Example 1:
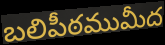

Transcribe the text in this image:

బలిపీఠముమీద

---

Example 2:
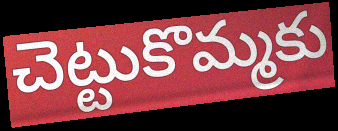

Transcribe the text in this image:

చెట్టుకొమ్మకు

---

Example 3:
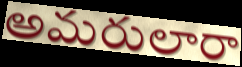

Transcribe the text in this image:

అమరులారా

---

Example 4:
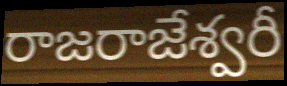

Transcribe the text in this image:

రాజరాజేశ్వరీ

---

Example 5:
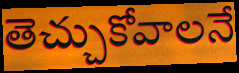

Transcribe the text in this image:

తెచ్చుకోవాలనే